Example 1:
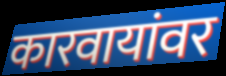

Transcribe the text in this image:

कारवायांवर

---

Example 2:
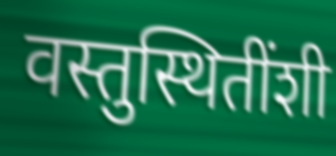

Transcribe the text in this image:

वस्तुस्थितींशी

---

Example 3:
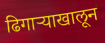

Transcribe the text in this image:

ढिगाऱ्याखालून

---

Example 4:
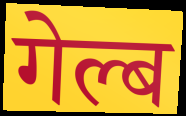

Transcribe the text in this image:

गेल्ब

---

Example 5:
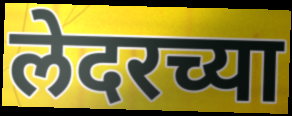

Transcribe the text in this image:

लेदरच्या